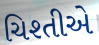
ચિશ્તીએ